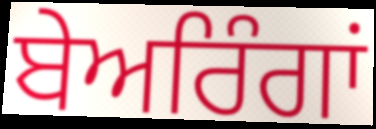
ਬੇਅਰਿੰਗਾਂ